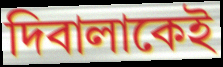
দিবালাকেই